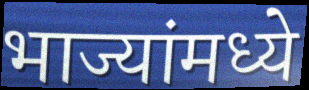
भाज्यांमध्ये